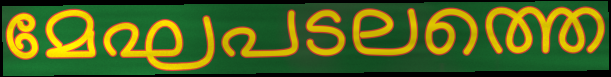
മേഘപടലത്തെ